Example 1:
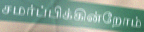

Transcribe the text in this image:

சமர்ப்பிக்கின்றோம்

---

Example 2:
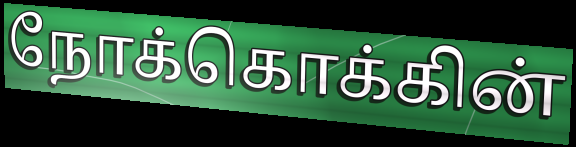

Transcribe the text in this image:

நோக்கொக்கின்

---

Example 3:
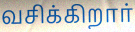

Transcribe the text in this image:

வசிக்கிறார்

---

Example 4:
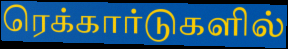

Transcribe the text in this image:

ரெக்கார்டுகளில்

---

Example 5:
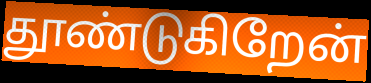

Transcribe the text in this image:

தூண்டுகிறேன்